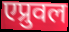
एप्रुवल